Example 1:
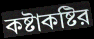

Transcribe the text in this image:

কষ্টাকষ্টির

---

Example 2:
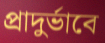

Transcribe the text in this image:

প্রাদুর্ভাবে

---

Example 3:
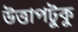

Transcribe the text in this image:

উত্তাপটুকু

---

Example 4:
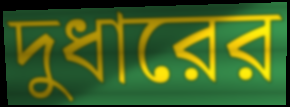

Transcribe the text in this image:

দুধারের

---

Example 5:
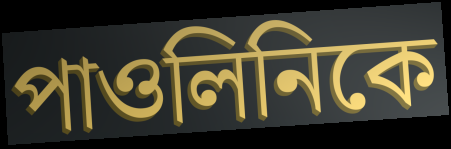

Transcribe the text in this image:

পাওলিনিকে